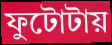
ফুটোটায়